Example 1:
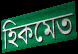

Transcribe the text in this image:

হিকমেত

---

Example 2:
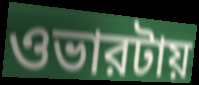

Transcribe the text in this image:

ওভারটায়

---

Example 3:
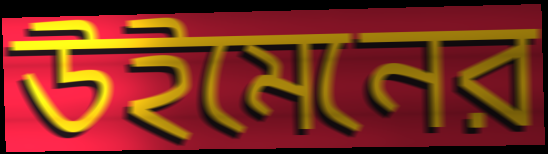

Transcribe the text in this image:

উইমেনের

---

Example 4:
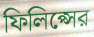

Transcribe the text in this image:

ফিলিপ্সের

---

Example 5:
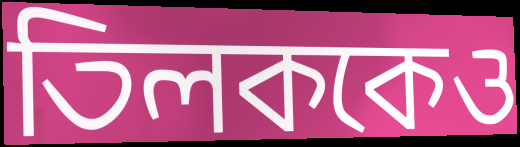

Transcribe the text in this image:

তিলককেও